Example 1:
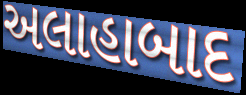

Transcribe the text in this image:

અલાહાબાદ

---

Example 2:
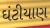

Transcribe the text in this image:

ઘંટીયાણ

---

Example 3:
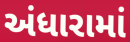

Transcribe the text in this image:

અંધારામાં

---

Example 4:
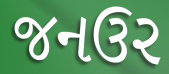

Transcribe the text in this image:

જનઉર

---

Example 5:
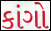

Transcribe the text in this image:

કાંગો